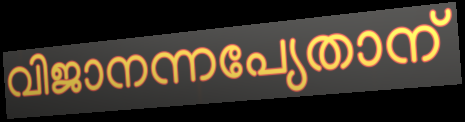
വിജാനന്നപ്യേതാന്